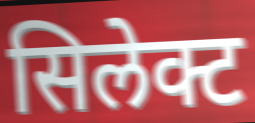
सिलेक्ट